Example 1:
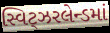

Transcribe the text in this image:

સ્વિટ્ઝરલેન્ડમાં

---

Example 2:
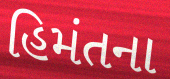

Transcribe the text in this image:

હિમંતના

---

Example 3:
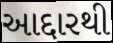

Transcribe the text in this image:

આદ્દારથી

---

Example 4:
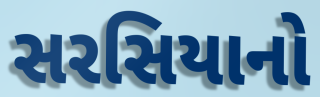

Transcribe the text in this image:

સરસિયાનો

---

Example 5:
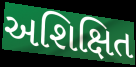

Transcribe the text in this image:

અશિક્ષિત